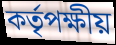
কর্তৃপক্ষীয়